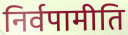
निर्वपामीति